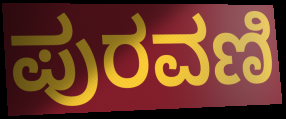
ಪುರವಣಿ